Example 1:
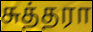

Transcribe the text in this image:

சுத்தரா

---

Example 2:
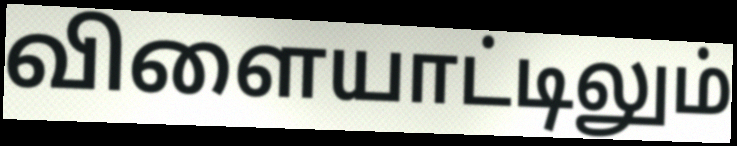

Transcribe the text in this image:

விளையாட்டிலும்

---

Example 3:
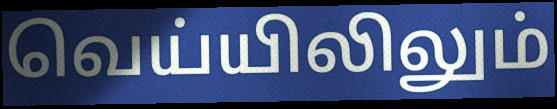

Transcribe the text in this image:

வெய்யிலிலும்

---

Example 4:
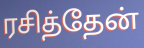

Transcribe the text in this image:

ரசித்தேன்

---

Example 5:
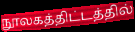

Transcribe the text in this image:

நூலகத்திட்டத்தில்